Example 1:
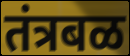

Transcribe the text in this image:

तंत्रबळ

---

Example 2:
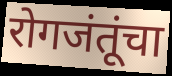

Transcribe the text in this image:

रोगजंतूंचा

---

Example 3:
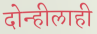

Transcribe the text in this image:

दोन्हीलाही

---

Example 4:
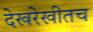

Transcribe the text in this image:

देखरेखीतच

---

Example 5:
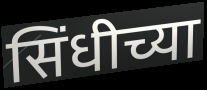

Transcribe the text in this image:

सिंधीच्या